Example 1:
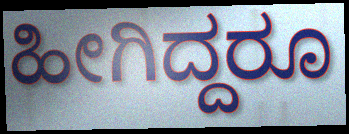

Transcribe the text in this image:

ಹೀಗಿದ್ದರೂ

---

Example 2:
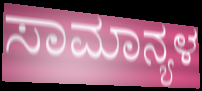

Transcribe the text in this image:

ಸಾಮಾನ್ಯಳ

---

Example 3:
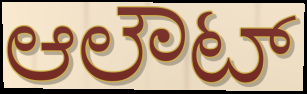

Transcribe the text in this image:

ಆಲೌಟ್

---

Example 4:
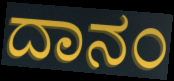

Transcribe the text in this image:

ದಾನಂ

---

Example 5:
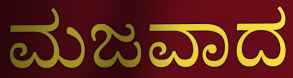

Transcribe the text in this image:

ಮಜವಾದ